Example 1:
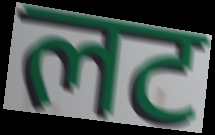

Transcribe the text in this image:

लट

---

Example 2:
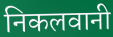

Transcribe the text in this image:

निकलवानी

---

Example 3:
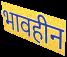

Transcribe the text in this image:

भावहीन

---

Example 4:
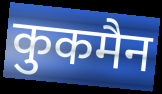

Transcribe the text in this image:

कुकमैन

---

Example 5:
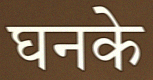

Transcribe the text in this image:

घनके